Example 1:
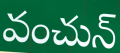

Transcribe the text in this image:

వంచున్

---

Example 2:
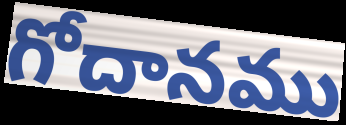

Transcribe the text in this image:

గోదానము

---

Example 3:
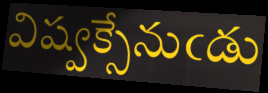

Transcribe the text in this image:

విష్వక్సేనుఁడు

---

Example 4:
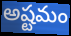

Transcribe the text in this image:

అష్టమం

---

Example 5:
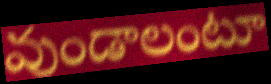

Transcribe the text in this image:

వుండాలంటూ